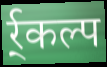
र्र्कल्प